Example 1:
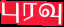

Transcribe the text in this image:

புரவு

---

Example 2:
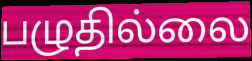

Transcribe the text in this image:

பழுதில்லை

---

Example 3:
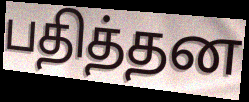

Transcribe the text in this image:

பதித்தன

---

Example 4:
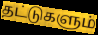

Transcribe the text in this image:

தட்டுகளும்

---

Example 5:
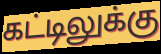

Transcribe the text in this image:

கட்டிலுக்கு